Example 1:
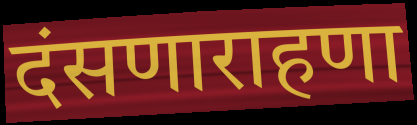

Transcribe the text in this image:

दंसणाराहणा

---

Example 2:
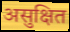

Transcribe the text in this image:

असुक्षित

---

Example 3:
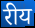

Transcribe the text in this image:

रीय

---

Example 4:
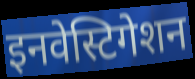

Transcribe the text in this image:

इनवेस्टिगेशन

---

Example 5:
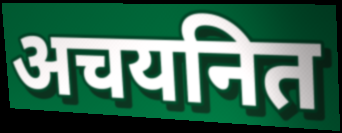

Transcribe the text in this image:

अचयनित